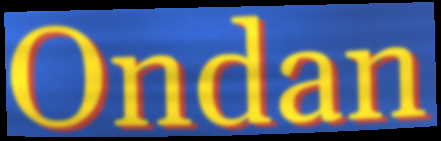
Ondan